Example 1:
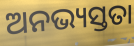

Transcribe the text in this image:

ଅନଭ୍ୟସ୍ତତା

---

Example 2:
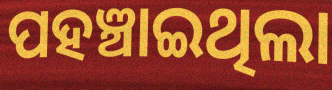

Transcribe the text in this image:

ପହଞ୍ଚାଇଥିଲା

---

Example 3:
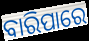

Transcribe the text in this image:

ବାରିପାରେ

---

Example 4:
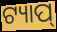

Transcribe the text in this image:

ଟ୍ୟାପ୍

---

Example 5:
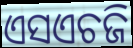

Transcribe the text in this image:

ଏସଏଚଜି